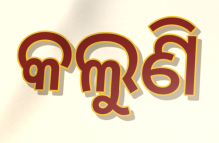
କଲୁଣି